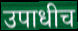
उपाधीच